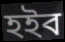
হইব